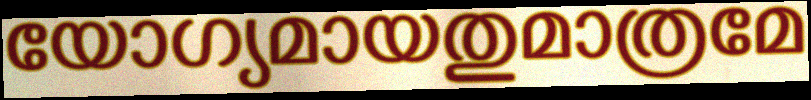
യോഗ്യമായതുമാത്രമേ